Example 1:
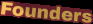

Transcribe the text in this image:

Founders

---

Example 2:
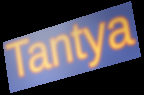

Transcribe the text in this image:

Tantya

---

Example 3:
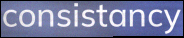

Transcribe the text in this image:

consistancy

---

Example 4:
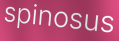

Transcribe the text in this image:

spinosus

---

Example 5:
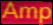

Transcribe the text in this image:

Amp